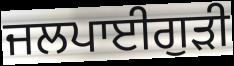
ਜਲਪਾਈਗੁਡ਼ੀ